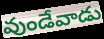
వుండేవాడు